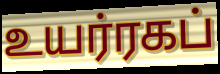
உயர்ரகப்